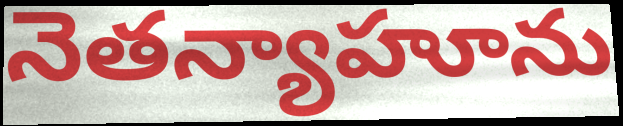
నెతన్యాహూను